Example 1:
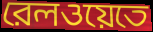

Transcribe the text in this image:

রেলওয়েতে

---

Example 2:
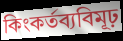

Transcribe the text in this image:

কিংকর্তব্যবিমূঢ়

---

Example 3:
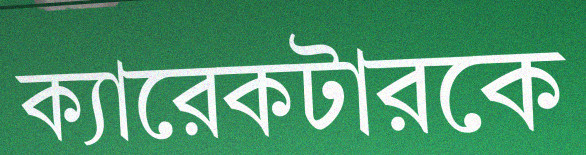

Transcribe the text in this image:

ক্যারেকটারকে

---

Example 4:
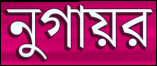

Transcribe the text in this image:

নুগায়র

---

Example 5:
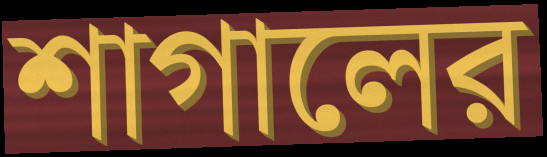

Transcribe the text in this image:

শাগালের